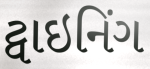
ટ્વાઇનિંગ